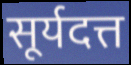
सूर्यदत्त